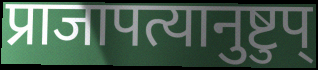
प्राजापत्यानुष्टुप्